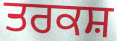
ਤਰਕਸ਼